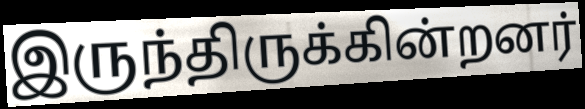
இருந்திருக்கின்றனர்